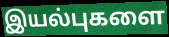
இயல்புகளை